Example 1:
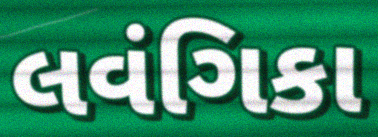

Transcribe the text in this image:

લવંગિકા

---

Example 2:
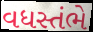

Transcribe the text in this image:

વધસ્તંભે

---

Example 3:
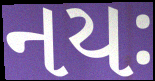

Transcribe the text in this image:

નયઃ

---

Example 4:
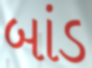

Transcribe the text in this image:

બાંડ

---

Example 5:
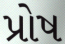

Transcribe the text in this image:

પ્રોષ